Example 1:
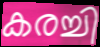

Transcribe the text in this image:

കരച്ചി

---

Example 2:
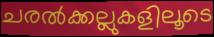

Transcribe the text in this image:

ചരൽക്കല്ലുകളിലൂടെ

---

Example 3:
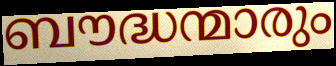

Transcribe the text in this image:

ബൗദ്ധന്മാരും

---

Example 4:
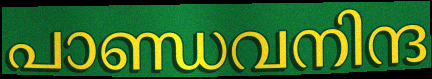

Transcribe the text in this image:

പാണ്ഡവനിന്ദ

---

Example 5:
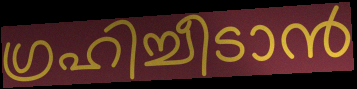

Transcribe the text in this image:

ഗ്രഹിച്ചീടാൻ